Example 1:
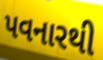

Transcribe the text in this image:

પવનારથી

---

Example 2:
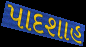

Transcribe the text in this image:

પાદશાહ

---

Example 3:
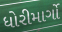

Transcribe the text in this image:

ધોરીમાર્ગો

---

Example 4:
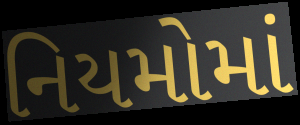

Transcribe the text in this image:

નિયમોમાં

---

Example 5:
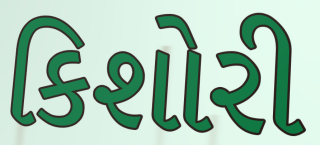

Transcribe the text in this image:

કિશોરી